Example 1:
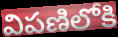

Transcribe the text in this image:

విపణిలోకి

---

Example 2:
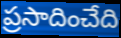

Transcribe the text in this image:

ప్రసాదించేది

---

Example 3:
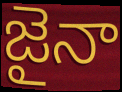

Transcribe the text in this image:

జైనా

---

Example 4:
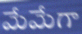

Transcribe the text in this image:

మేమేగా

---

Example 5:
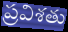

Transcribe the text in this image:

ప్రవిశతు